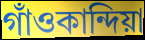
গাঁওকান্দিয়া